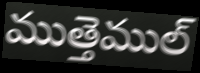
ముత్తెముల్